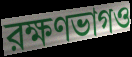
রক্ষণভাগও